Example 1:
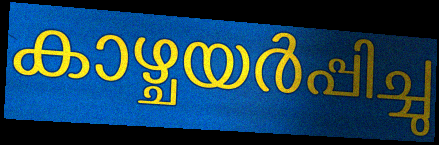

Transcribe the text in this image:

കാഴ്ചയർപ്പിച്ചു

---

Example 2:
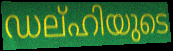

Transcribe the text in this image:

ഡല്ഹിയുടെ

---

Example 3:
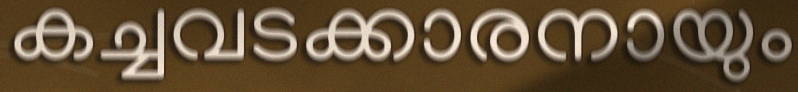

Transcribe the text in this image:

കച്ചവടക്കാരനായും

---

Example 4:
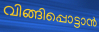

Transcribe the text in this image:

വിങ്ങിപ്പൊട്ടാൻ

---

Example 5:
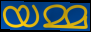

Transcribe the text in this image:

യമ്മ